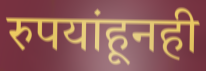
रुपयांहूनही